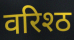
वरिश्ठ